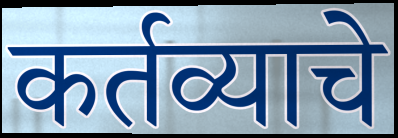
कर्तव्याचे